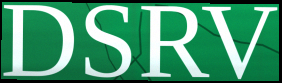
DSRV